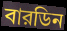
বারডিন